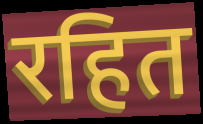
रहित